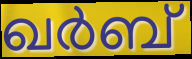
ഖർബ്